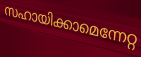
സഹായിക്കാമെന്നേറ്റ